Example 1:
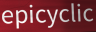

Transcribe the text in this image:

epicyclic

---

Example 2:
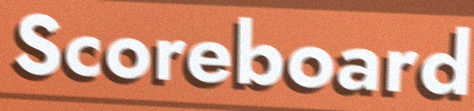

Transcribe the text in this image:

Scoreboard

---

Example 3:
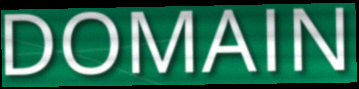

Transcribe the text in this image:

DOMAIN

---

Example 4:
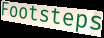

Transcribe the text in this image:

Footsteps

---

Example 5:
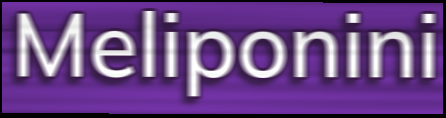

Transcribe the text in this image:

Meliponini